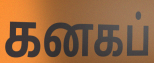
கனகப்